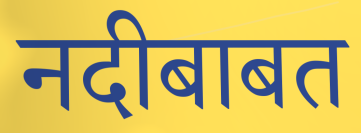
नदीबाबत